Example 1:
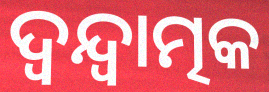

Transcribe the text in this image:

ଦ୍ଵନ୍ଦ୍ଵାତ୍ମକ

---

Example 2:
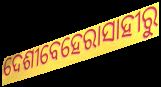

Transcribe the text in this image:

ଦେଶୀବେହେରାସାହୀରୁ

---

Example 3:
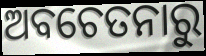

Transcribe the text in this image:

ଅବଚେତନାରୁ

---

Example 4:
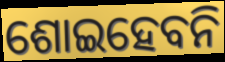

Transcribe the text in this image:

ଶୋଇହେବନି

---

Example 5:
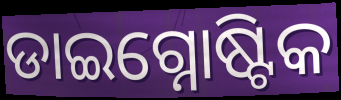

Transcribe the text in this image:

ଡାଇଗ୍ନୋଷ୍ଟିକ